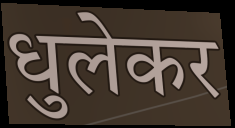
धुलेकर